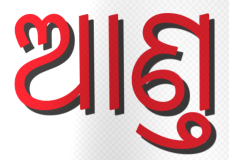
ଆଣ୍ତ